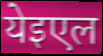
येइएल